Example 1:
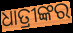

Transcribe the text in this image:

ଧାତ୍ରୀଙ୍କର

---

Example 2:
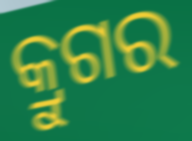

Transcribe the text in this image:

କ୍ରୁଗର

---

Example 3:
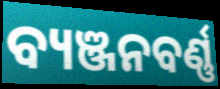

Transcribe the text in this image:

ବ୍ୟଞ୍ଜନବର୍ଣ୍ଣ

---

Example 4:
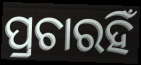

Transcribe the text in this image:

ପ୍ରଚାରହିଁ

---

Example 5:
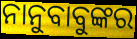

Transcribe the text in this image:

ନାନୁବାବୁଙ୍କର